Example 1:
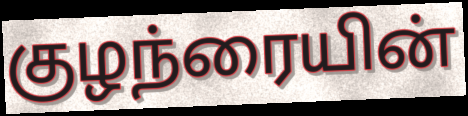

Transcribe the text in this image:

குழந்ரையின்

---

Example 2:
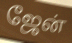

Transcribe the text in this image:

ஜேன்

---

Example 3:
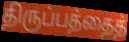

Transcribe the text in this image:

திருப்பத்தைத்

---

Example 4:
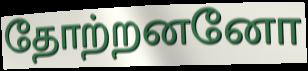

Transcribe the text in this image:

தோற்றனனோ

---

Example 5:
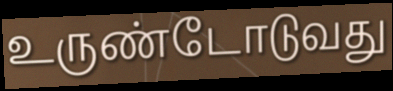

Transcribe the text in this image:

உருண்டோடுவது